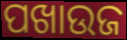
ପଖାଉଜ